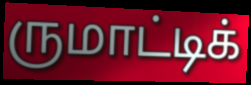
ருமாட்டிக்